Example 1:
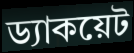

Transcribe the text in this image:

ড্যাকয়েট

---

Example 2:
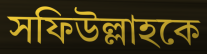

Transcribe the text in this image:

সফিউল্লাহকে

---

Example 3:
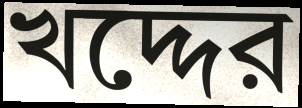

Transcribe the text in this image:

খদ্দের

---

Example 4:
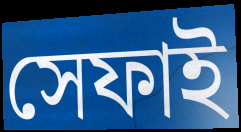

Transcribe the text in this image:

সেফাই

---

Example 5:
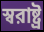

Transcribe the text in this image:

স্বরাষ্ট্র